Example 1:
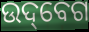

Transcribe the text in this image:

ଉଦ୍‌ବେଗ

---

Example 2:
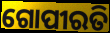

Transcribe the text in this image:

ଗୋପୀରତି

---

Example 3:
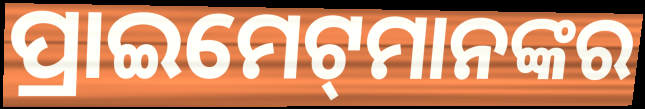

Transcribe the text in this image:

ପ୍ରାଇମେଟ୍‌ମାନଙ୍କର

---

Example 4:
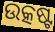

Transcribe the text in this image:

ଉତ୍କଷ୍ଟ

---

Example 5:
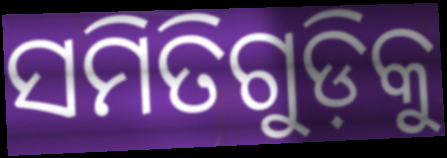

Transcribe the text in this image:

ସମିତିଗୁଡ଼ିକୁ